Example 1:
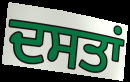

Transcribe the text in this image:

ਦਸਤਾਂ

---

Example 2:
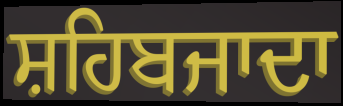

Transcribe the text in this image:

ਸ਼ਹਿਬਜਾਦਾ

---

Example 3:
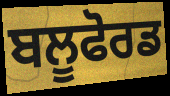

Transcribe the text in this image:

ਬਲੂਫੋਰਡ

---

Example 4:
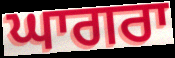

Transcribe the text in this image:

ਘਾਗਰਾ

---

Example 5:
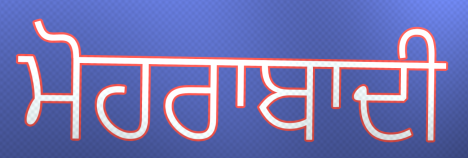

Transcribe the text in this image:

ਮੋਹਰਾਬਾਦੀ